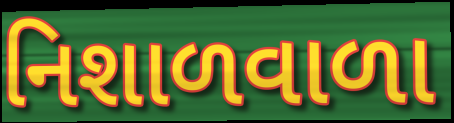
નિશાળવાળા